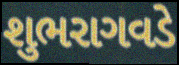
શુભરાગવડે